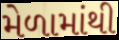
મેળામાંથી